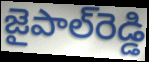
జైపాల్‌రెడ్డి